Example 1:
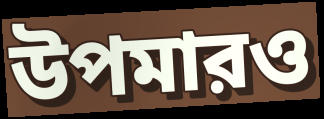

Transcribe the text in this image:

উপমারও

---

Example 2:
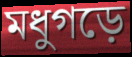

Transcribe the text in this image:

মধুগড়ে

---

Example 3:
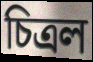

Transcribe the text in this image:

চিত্রল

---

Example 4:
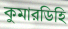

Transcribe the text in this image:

কুমারডিহি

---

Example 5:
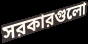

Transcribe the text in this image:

সরকারগুলো